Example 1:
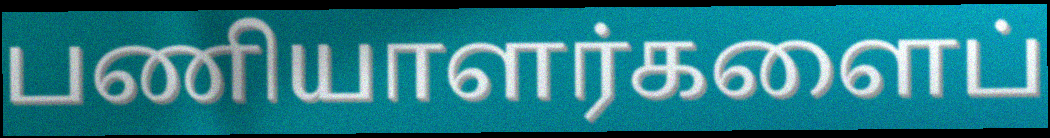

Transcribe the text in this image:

பணியாளர்களைப்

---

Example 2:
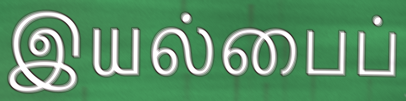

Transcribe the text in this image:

இயல்பைப்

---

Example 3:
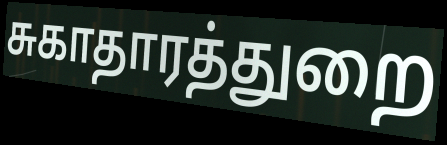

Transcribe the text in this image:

சுகாதாரத்துறை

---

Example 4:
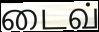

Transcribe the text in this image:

டைவ்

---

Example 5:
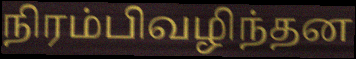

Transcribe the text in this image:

நிரம்பிவழிந்தன